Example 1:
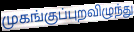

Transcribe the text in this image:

முகங்குப்புறவிழுந்து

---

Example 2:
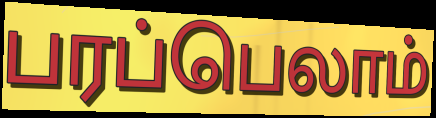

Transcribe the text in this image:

பரப்பெலாம்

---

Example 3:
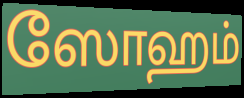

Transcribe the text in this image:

ஸோஹம்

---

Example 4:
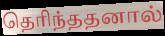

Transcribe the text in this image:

தெரிந்ததனால்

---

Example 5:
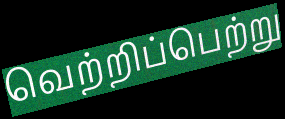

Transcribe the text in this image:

வெற்றிப்பெற்று